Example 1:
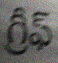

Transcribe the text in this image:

గ్రీఫ్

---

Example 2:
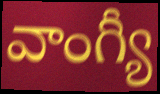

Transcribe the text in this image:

వాంగ్యీ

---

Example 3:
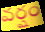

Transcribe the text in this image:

వర్షం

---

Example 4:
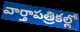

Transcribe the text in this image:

వార్తాపత్రికల్లో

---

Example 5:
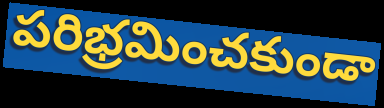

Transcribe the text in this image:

పరిభ్రమించకుండా